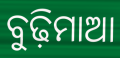
ବୁଢ଼ିମାଆ